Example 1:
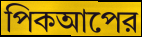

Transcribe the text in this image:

পিকআপের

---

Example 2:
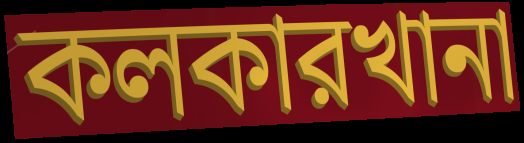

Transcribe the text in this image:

কলকারখানা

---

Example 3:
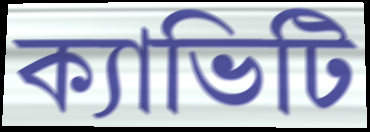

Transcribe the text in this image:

ক্যাভিটি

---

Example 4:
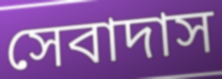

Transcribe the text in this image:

সেবাদাস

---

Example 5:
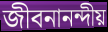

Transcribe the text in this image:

জীবনানন্দীয়